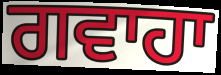
ਗਵਾਹਾ